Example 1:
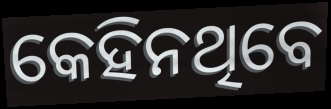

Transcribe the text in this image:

କେହିନଥିବେ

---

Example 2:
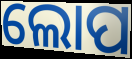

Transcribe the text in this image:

ଲୋପ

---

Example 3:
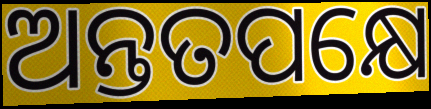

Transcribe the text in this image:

ଅନ୍ତତପକ୍ଷେ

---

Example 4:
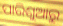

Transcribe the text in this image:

ପାରିଶୁଆରୁ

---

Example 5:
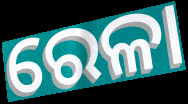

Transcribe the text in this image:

ରେଳା